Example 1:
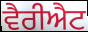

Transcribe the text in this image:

ਵੈਰੀਐਟ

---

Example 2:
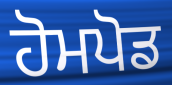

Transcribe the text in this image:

ਹੋਮਪੋਡ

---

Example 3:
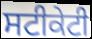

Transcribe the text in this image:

ਸਟੀਕੇਟੀ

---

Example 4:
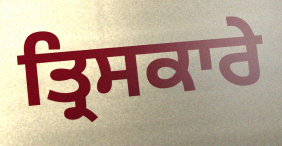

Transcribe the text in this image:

ਤ੍ਰਿਸਕਾਰੇ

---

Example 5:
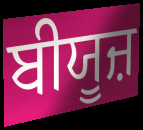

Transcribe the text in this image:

ਬੀਯੂਜ਼